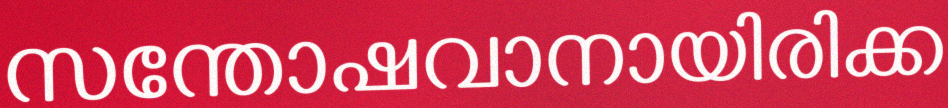
സന്തോഷവാനായിരിക്ക